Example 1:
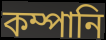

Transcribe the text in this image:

কম্পানি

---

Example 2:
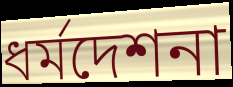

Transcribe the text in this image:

ধর্মদেশনা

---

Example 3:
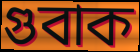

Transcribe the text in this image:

গুবাক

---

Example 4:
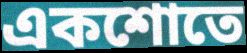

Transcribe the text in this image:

একশোতে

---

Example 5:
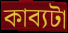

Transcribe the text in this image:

কাব্যটা